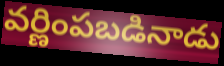
వర్ణింపబడినాడు